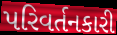
પરિવર્તનકારી